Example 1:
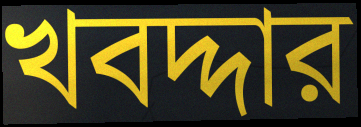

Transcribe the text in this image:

খবদ্দার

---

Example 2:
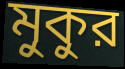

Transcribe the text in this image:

মুকুর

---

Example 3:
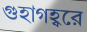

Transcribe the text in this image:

গুহাগহ্বরে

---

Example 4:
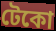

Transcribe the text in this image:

টেকো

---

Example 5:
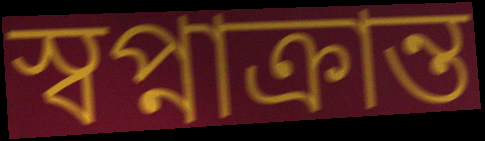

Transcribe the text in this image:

স্বপ্নাক্রান্ত